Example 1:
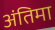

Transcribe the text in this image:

अंतिमा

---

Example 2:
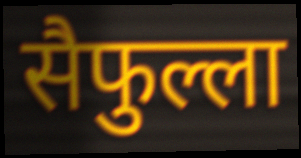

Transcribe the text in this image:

सैफुल्ला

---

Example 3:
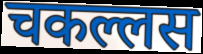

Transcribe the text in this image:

चकल्लस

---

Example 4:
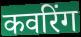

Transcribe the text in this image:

कवरिंग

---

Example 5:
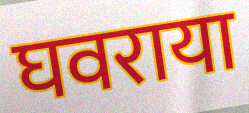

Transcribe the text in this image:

घवराया